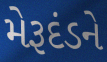
મેરૂદંડને